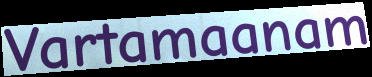
Vartamaanam